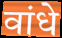
वांधे